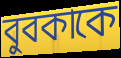
বুবকাকে